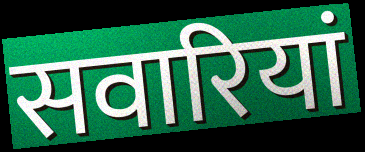
सवारियां